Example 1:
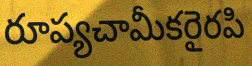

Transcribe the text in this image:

రూప్యచామీకరైరపి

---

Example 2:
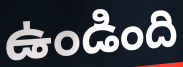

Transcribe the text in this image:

ఉండింది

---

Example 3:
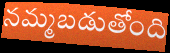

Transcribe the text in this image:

నమ్మబడుతోంది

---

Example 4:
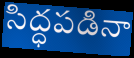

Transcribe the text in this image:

సిద్ధపడినా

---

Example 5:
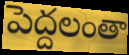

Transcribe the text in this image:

పెద్దలంతా